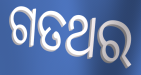
ଗତଥର